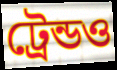
ট্রেন্ডও